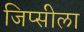
जिप्सीला